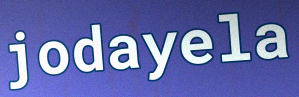
jodayela